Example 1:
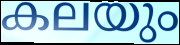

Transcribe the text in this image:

കലയും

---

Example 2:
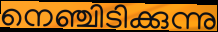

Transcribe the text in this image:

നെഞ്ചിടിക്കുന്നു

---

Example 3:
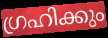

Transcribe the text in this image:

ഗ്രഹിക്കും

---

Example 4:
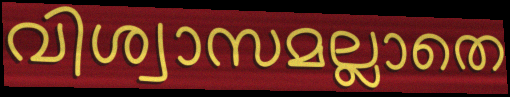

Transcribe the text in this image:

വിശ്വാസമല്ലാതെ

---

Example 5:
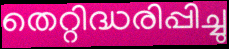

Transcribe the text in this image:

തെറ്റിദ്ധരിപ്പിച്ചു